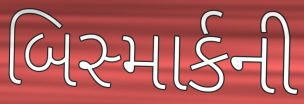
બિસ્માર્કની